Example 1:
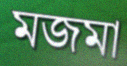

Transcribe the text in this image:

মজমা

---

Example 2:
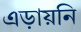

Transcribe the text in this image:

এড়ায়নি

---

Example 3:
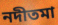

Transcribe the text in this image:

নদীতমা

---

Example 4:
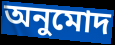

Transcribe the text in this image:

অনুমোদ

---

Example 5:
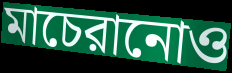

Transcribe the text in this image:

মাচেরানোও